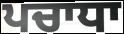
ਪਚਾਧਾ